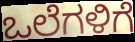
ಒಲೆಗಳಿಗೆ